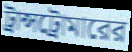
ট্রান্সট্রোমারের